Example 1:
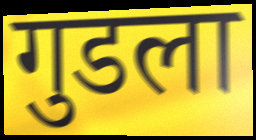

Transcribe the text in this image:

गुडला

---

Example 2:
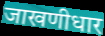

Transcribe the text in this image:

जाखणीधार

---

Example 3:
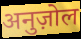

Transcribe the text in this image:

अनुज़ोल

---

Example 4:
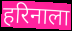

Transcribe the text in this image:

हरिनाला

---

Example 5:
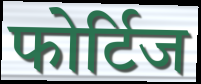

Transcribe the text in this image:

फोर्टिज